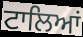
ਟਾਲਿਆਂ